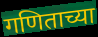
गणिताच्या